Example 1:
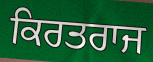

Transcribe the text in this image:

ਕਿਰਤਰਾਜ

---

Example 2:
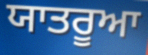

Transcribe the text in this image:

ਯਾਤਰੂਆ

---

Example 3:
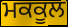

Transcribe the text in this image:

ਮਕਕੂਲ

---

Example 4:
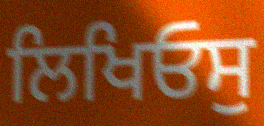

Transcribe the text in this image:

ਲਿਖਿਓਸੁ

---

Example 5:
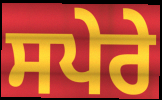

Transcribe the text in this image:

ਸਪੇਰੇ